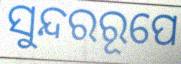
ସୁନ୍ଦରରୂପେ